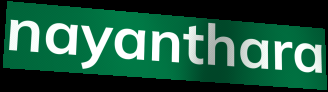
nayanthara